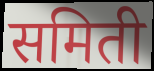
समिती